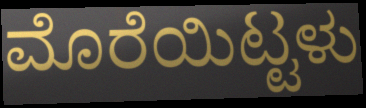
ಮೊರೆಯಿಟ್ಟಳು